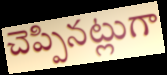
చెప్పినట్లుగా